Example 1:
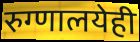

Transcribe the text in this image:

रुग्णालयेही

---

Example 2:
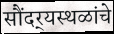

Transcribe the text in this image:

सौंदर्यस्थळांचे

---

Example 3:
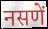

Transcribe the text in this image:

नसणें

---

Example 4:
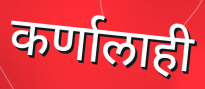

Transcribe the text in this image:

कर्णालाही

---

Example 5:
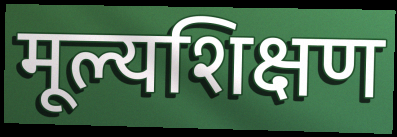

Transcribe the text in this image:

मूल्यशिक्षण